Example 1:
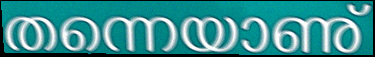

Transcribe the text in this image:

തന്നെയാണു്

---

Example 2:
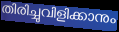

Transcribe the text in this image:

തിരിച്ചുവിളിക്കാനും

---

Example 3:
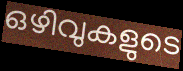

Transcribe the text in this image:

ഒഴിവുകളുടെ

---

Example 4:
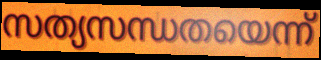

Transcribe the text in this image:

സത്യസന്ധതയെന്ന്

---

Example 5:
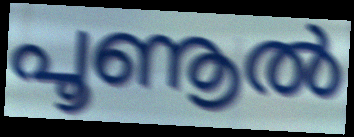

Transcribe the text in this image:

പൂണൂൽ